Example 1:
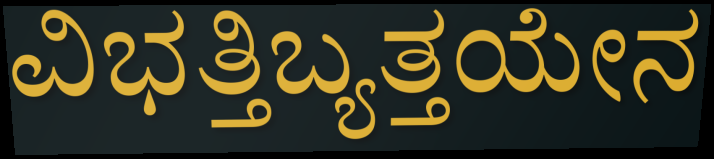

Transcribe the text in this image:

ವಿಭತ್ತಿಬ್ಯತ್ತಯೇನ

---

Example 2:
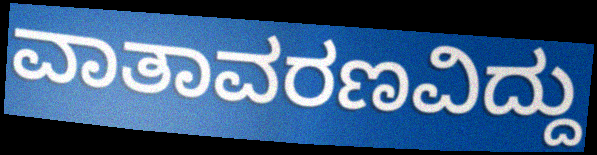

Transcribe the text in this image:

ವಾತಾವರಣವಿದ್ದು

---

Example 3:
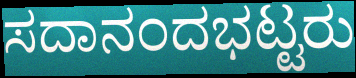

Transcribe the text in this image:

ಸದಾನಂದಭಟ್ಟರು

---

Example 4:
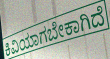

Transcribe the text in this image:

ಕಿವಿಯಾಗಬೇಕಾಗಿದೆ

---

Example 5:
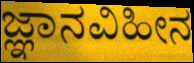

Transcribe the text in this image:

ಜ್ಞಾನವಿಹೀನ